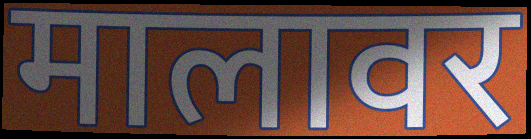
मालावर